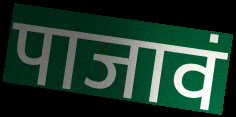
पाजावं